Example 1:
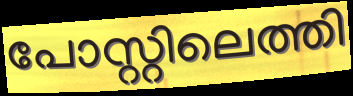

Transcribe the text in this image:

പോസ്റ്റിലെത്തി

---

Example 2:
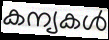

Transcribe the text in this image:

കന്യകൾ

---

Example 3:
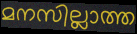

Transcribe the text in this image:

മനസില്ലാത്ത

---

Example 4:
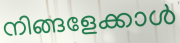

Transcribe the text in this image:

നിങ്ങളേക്കാൾ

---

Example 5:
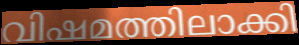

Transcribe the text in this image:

വിഷമത്തിലാക്കി